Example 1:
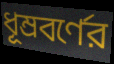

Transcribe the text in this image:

ধূম্রবর্ণের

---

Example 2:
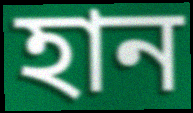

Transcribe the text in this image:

হান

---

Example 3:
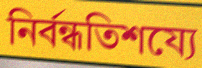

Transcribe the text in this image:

নির্বন্ধতিশয্যে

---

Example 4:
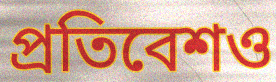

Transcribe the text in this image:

প্রতিবেশও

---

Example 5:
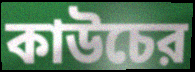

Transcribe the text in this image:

কাউচের